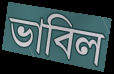
ভাবিল